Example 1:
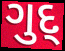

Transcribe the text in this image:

ગુદ્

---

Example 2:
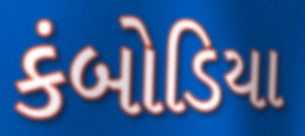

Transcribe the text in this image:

કંબોડિયા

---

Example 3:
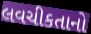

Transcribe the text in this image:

લવચીકતાનો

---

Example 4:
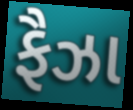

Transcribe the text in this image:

ફૈઝા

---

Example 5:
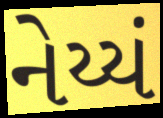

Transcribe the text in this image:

નેય્યં